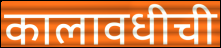
कालावधीची